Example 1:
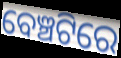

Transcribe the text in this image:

ବେଞ୍ଚଟିରେ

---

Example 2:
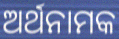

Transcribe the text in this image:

ଅର୍ଥନାମକ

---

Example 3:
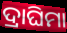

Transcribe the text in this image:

ଦ୍ରାଘିମା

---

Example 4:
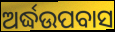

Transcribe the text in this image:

ଅର୍ଦ୍ଧଉପବାସ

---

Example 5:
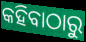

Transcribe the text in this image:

କହିବାଠାରୁ